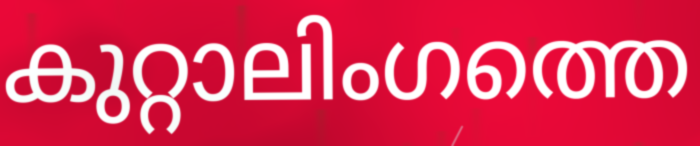
കുറ്റാലിംഗത്തെ